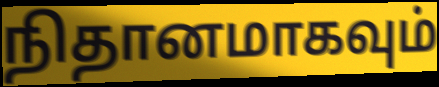
நிதானமாகவும்